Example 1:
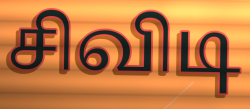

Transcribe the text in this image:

சிவிடி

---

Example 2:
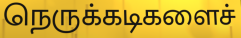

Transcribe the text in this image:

நெருக்கடிகளைச்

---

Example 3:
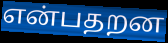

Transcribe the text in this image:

என்பதறன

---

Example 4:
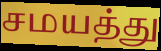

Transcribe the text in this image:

சமயத்து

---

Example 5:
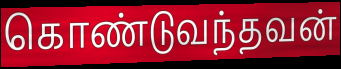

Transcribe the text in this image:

கொண்டுவந்தவன்